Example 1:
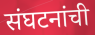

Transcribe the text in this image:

संघटनांची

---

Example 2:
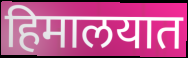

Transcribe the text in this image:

हिमालयात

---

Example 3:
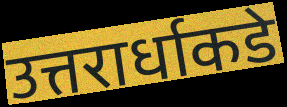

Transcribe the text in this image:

उत्तरार्धाकडे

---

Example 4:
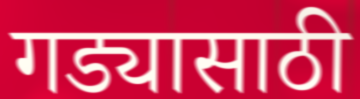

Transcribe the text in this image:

गड्यासाठी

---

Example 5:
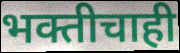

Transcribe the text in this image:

भक्तीचाही